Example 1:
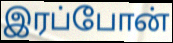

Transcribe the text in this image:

இரப்போன்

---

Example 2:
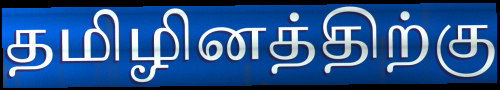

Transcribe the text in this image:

தமிழினத்திற்கு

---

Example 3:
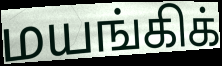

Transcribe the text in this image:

மயங்கிக்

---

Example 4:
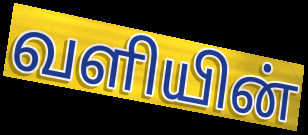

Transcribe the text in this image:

வளியின்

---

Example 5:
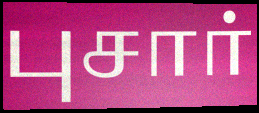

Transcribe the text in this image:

புசார்